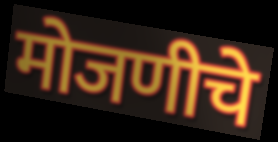
मोजणीचे